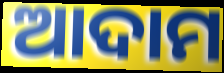
ଆଦାମ